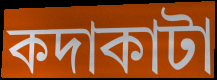
কদাকাটা